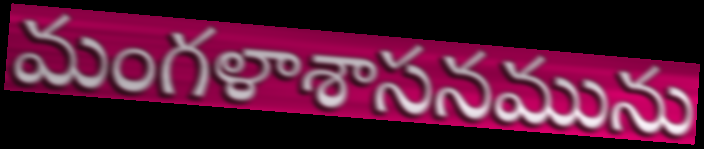
మంగళాశాసనమును